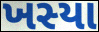
ખસ્યા